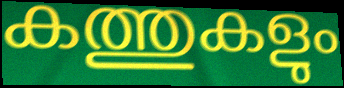
കത്തുകളും